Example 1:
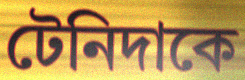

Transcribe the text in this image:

টেনিদাকে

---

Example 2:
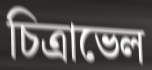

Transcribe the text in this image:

চিত্রাভেল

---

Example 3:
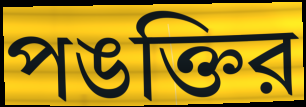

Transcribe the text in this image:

পঙক্তির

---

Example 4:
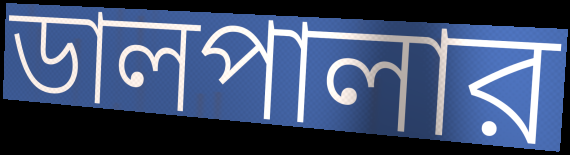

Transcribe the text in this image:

ডালপালার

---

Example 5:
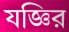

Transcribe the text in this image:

যজ্ঞির